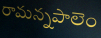
రామన్నపాలెం